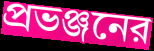
প্রভঞ্জনের